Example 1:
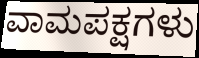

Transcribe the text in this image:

ವಾಮಪಕ್ಷಗಳು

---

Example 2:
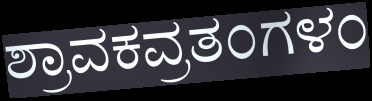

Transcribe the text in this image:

ಶ್ರಾವಕವ್ರತಂಗಳಂ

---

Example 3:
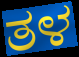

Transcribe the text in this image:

ತಳ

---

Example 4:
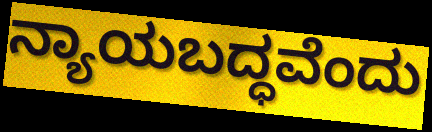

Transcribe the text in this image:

ನ್ಯಾಯಬದ್ಧವೆಂದು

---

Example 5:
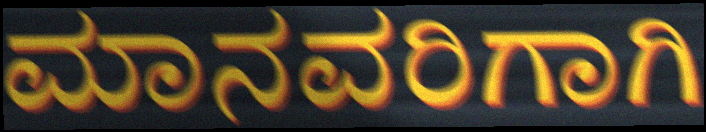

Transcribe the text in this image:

ಮಾನವರಿಗಾಗಿ